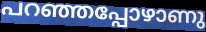
പറഞ്ഞപ്പോഴാണു